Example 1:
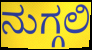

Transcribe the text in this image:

ನುಗ್ಗಲಿ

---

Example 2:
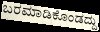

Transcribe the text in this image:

ಬರಮಾಡಿಕೊಂಡದ್ದು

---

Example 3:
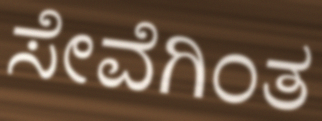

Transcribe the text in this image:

ಸೇವೆಗಿಂತ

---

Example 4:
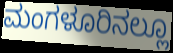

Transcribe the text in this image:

ಮಂಗಳೂರಿನಲ್ಲೂ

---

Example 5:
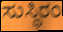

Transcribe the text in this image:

ಸುಸ್ಥಿರಂ